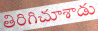
తిరిగిచూశాడు